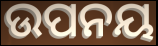
ଉପନୟ